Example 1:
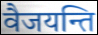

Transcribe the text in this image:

वैजयन्ति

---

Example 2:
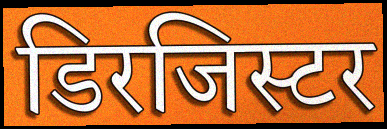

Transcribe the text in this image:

डिरजिस्टर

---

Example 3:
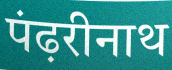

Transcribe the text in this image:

पंढ़रीनाथ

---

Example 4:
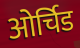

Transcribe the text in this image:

ओर्चिड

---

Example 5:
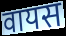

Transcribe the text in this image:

वायस